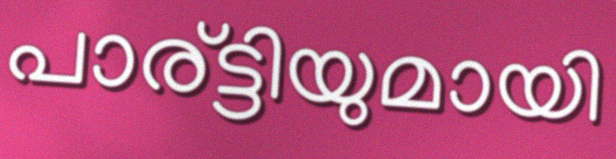
പാര്ട്ടിയുമായി